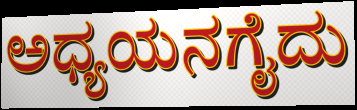
ಅಧ್ಯಯನಗೈದು